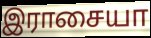
இராசையா